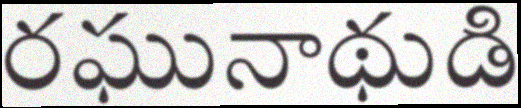
రఘునాథుడి